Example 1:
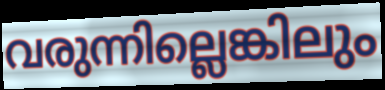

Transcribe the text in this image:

വരുന്നില്ലെങ്കിലും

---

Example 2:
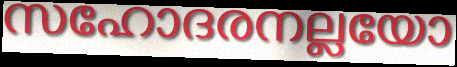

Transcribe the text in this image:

സഹോദരനല്ലയോ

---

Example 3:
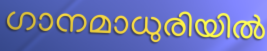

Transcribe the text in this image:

ഗാനമാധുരിയിൽ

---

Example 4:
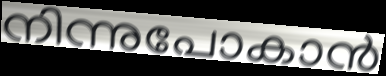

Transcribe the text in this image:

നിന്നുപോകാൻ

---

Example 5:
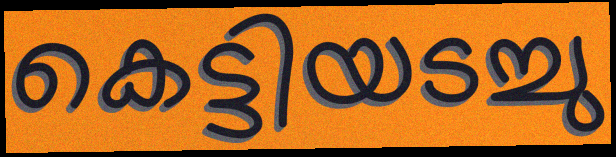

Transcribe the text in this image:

കെട്ടിയടച്ചു